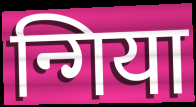
न्गिया